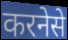
करनेसे